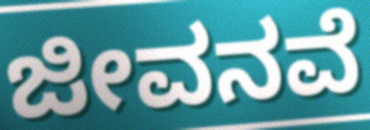
ಜೀವನವೆ